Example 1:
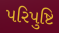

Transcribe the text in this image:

પરિપુષ્ટિ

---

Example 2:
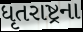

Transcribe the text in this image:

ધૃતરાષ્ટ્રના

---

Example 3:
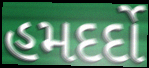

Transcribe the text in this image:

હમદર્દો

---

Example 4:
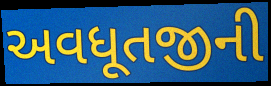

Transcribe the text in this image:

અવધૂતજીની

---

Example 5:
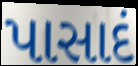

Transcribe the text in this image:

પાસાદં